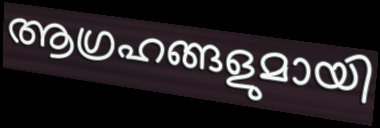
ആഗ്രഹങ്ങളുമായി